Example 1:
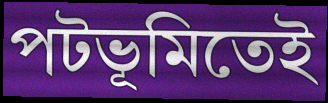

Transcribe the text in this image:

পটভূমিতেই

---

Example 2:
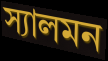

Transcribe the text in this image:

স্যালমন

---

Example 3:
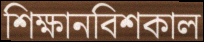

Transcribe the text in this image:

শিক্ষানবিশকাল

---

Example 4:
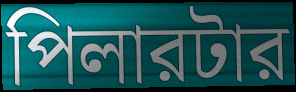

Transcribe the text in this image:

পিলারটার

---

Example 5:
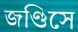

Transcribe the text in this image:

জণ্ডিসে